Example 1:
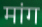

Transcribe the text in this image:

मांग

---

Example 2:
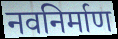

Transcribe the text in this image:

नवनिर्माण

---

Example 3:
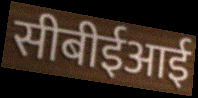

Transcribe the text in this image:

सीबीईआई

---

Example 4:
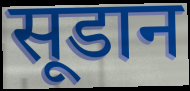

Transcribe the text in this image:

सूडान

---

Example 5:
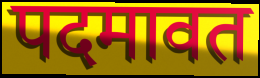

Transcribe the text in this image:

पदमावत